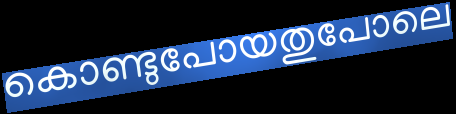
കൊണ്ടുപോയതുപോലെ